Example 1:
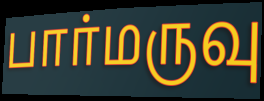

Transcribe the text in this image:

பார்மருவு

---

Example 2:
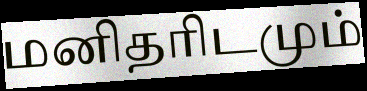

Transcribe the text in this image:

மனிதரிடமும்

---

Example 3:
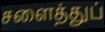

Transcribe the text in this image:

சளைத்துப்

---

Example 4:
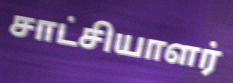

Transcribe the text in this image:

சாட்சியாளர்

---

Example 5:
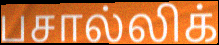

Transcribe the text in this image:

பசால்லிக்